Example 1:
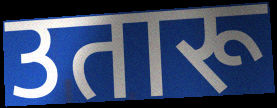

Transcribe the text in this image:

उतारू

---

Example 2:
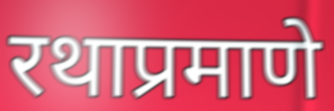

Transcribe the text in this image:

रथाप्रमाणे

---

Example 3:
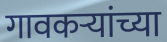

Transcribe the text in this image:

गावकऱ्यांच्या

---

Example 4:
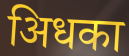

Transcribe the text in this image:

अिधका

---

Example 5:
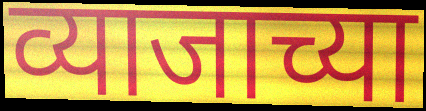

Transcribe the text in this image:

व्याजाच्या